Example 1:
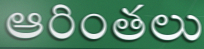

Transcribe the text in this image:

ఆరింతలు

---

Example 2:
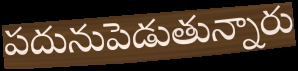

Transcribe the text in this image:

పదునుపెడుతున్నారు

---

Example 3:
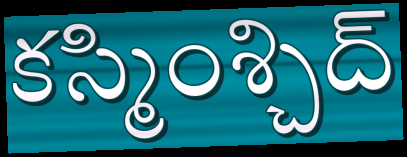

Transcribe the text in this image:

కస్మింశ్చిద్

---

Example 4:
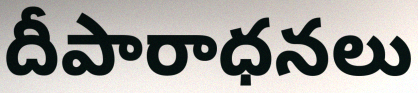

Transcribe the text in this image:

దీపారాధనలు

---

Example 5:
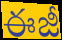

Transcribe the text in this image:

ఈజీ